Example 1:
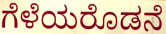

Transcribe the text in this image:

ಗೆಳೆಯರೊಡನೆ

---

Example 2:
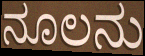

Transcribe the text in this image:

ನೂಲನು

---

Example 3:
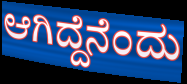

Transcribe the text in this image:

ಆಗಿದ್ದೆನೆಂದು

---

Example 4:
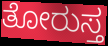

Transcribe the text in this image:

ತೋರುಸ್ತ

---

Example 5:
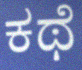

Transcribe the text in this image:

ಕಥೆ